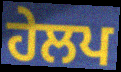
ਹੇਲਪ